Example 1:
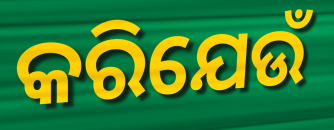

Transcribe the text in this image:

କରିଯେଉଁ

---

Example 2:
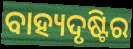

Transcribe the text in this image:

ବାହ୍ୟଦୃଷ୍ଟିର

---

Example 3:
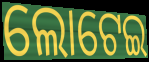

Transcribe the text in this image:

ଲୋଟେଇ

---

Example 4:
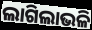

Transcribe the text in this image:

ଲାଗିଲାଭଳି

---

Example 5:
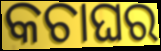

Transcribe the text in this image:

କଚାଘର